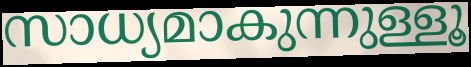
സാധ്യമാകുന്നുള്ളൂ